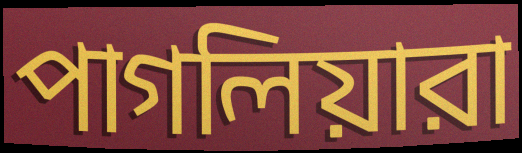
পাগলিয়ারা